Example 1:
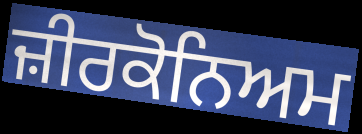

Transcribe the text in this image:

ਜ਼ੀਰਕੋਨਿਅਮ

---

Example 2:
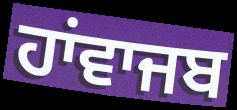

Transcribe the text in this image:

ਹਾਂਵਾਜਬ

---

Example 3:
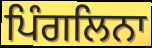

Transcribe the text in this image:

ਪਿੰਗਲਿਨਾ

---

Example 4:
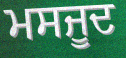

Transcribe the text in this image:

ਮਸਜੂਦ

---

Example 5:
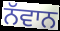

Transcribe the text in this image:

ਨੱਵਾਨ